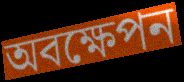
অবক্ষেপন